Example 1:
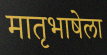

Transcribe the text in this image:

मातृभाषेला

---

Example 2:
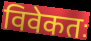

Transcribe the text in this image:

विवेकतः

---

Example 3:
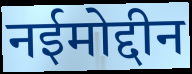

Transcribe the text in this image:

नईमोद्दीन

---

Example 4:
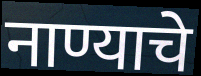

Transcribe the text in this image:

नाण्याचे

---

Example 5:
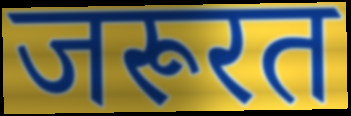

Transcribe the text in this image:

जरूरत